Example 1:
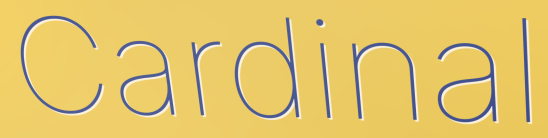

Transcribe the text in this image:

Cardinal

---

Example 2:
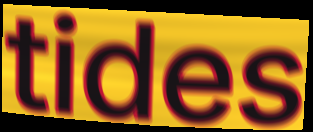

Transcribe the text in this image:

tides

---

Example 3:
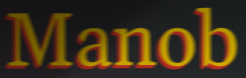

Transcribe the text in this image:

Manob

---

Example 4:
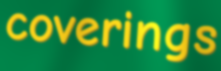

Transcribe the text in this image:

coverings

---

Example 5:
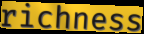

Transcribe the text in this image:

richness